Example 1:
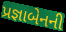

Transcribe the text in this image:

પ્રજ્ઞાબેનની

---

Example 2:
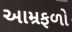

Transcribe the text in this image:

આમ્રફળો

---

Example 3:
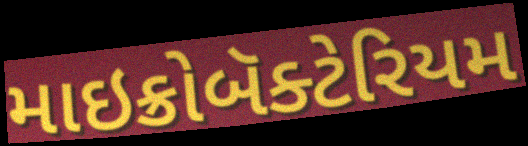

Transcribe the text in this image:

માઇક્રોબૅક્ટેરિયમ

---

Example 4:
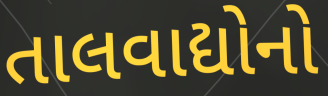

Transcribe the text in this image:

તાલવાદ્યોનો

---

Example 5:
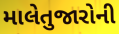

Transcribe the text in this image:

માલેતુજારોની